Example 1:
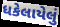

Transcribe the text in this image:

ધકેલાયેલું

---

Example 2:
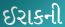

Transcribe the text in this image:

ઈરાકની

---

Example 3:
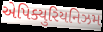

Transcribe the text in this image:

એપિક્યુરિયનિઝમ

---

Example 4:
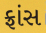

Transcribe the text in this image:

ફ્રાંસ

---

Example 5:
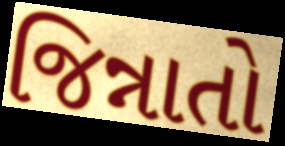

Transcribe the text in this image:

જિન્નાતો